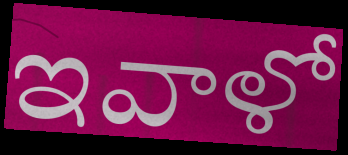
ఇవాళో